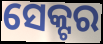
ସେକ୍ଟର